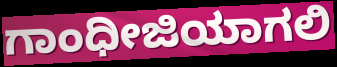
ಗಾಂಧೀಜಿಯಾಗಲಿ